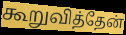
கூறுவித்தேன்